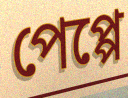
পেপ্পে